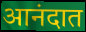
आनंदात